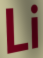
Li